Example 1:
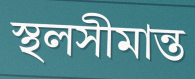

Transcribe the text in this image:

স্থলসীমান্ত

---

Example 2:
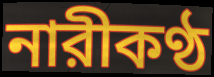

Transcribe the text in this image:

নারীকণ্ঠ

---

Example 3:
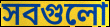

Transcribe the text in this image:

সবগুলো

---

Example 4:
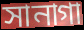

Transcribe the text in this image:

সানাগা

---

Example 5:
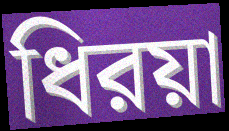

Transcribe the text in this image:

ধিরয়া